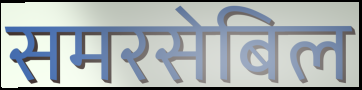
समरसेबिल